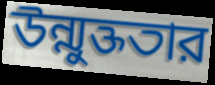
উন্মুক্ততার